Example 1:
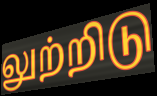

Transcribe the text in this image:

லுற்றிடு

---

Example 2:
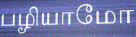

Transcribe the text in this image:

பழியாமோ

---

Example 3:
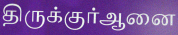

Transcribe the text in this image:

திருக்குர்ஆனை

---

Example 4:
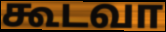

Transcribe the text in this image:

கூடவா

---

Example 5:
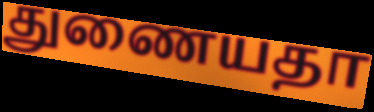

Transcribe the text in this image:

துணையதா